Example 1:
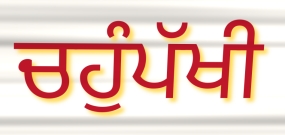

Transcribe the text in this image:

ਚਹੁੰਪੱਖੀ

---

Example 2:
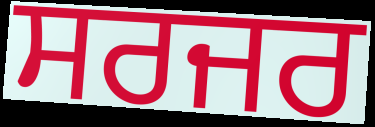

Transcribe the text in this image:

ਸਰਜਰ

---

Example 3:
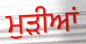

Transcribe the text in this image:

ਮੁੜੀਆਂ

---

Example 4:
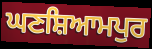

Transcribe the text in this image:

ਘਣਸ਼ਿਆਮਪੁਰ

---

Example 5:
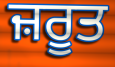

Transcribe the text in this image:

ਜ਼ਰੂਤ